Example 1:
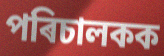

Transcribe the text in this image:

পৰিচালকক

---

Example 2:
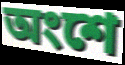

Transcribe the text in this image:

অংশে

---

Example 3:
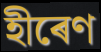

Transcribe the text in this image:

হীৰেণ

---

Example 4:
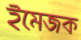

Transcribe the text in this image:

ইমেজক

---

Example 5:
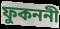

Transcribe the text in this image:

ফুকননী